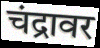
चंद्रावर